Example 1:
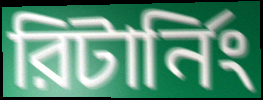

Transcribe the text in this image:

রিটার্নিং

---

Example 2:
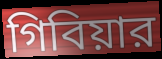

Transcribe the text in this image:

গিবিয়ার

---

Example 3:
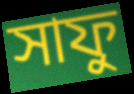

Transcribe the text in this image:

সাফু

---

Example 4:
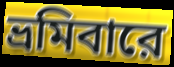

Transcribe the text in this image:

ভ্রমিবারে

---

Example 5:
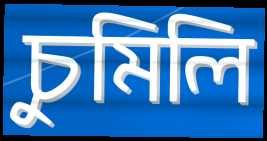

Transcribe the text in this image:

চুমিলি